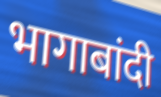
भागाबांदी